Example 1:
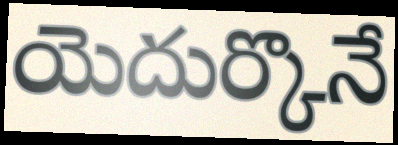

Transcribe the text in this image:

యెదుర్కొనే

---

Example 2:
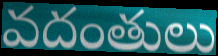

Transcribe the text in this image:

వదంతులు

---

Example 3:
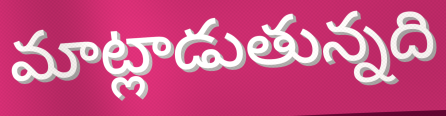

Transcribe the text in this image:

మాట్లాడుతున్నది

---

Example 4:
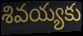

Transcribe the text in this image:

శివయ్యకు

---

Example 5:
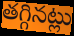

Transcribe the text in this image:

తగ్గినట్లు